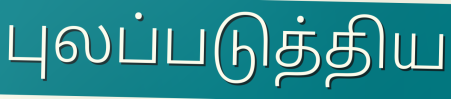
புலப்படுத்திய